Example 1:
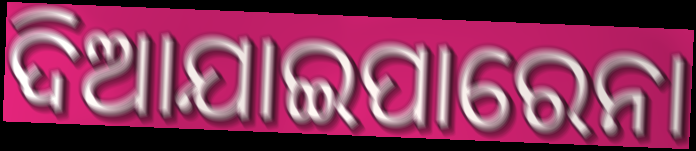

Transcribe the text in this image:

ଦିଆଯାଇପାରେନା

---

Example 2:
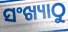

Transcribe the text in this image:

ସଂଖ୍ୟାଠୁ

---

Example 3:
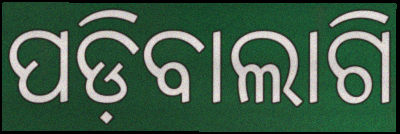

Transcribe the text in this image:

ପଡ଼ିବାଲାଗି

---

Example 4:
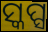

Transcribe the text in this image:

ସ୍କପ୍ସ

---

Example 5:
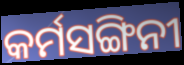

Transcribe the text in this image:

କର୍ମସଙ୍ଗିନୀ